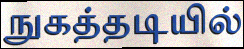
நுகத்தடியில்